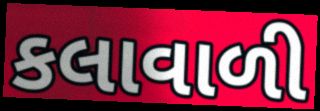
કલાવાળી